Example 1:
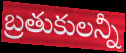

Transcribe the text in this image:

బ్రతుకులన్నీ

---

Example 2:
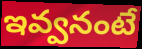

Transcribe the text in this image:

ఇవ్వనంటే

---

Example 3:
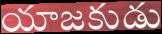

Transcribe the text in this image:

యాజకుడు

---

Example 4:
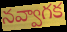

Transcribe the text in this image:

నవ్వాగక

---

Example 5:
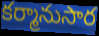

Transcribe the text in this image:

కర్మానుసార